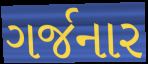
ગર્જનાર